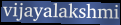
vijayalakshmi